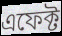
এফেক্ট